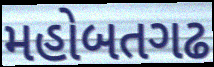
મહોબતગઢ